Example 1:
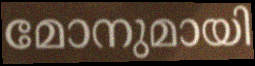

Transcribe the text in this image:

മോനുമായി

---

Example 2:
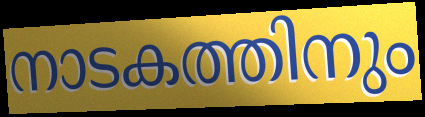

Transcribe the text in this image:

നാടകത്തിനും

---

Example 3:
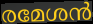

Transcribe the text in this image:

രമേശൻ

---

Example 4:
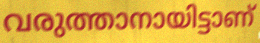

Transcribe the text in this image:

വരുത്താനായിട്ടാണ്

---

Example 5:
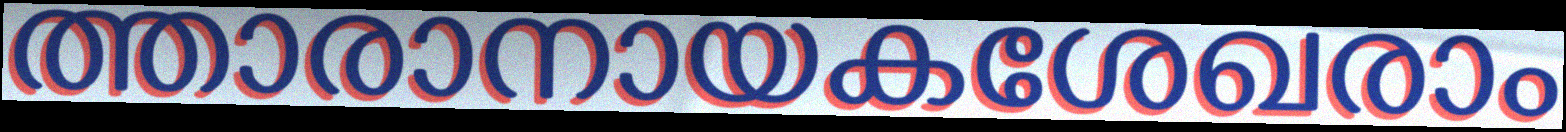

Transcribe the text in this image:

ത്താരാനായകശേഖരാം